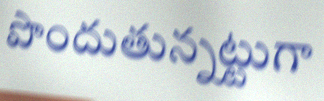
పొందుతున్నట్టుగా